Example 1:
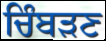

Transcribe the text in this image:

ਚਿੰਬੜਣ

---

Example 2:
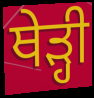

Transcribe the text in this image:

ਥੇੜ੍ਹੀ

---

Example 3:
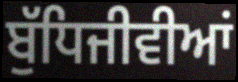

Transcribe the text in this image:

ਬੁੱਧਿਜੀਵੀਆਂ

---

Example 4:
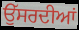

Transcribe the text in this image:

ਉੱਸਰਦੀਆਂ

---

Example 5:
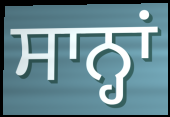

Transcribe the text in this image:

ਸਾਨ੍ਹਾਂ